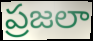
ప్రజలా